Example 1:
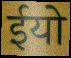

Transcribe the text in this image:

ईयो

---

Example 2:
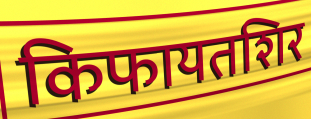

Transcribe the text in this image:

किफायतशिर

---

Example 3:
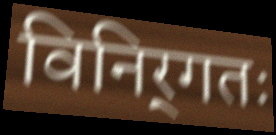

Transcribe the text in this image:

विनिर्गतः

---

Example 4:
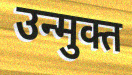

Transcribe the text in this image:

उन्मुक्त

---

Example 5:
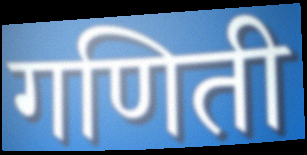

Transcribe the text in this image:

गणिती